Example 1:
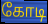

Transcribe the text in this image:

கோடி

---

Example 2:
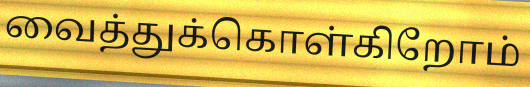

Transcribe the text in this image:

வைத்துக்கொள்கிறோம்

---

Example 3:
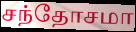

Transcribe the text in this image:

சந்தோசமா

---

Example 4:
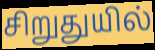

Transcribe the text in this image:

சிறுதுயில்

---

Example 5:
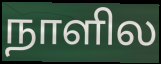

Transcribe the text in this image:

நாளில